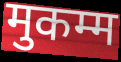
मुकम्म